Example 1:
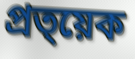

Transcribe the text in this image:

প্ৰত্য়েক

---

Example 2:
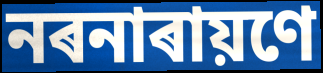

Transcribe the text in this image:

নৰনাৰায়ণে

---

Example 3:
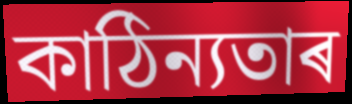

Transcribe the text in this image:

কাঠিন্যতাৰ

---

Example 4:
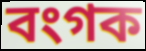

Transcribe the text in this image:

বংগক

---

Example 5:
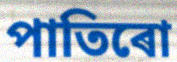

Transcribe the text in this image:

পাতিৰো